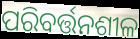
ପରିବର୍ତ୍ତନଶୀଳ